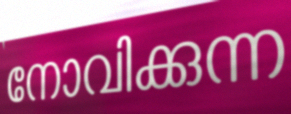
നോവിക്കുന്ന